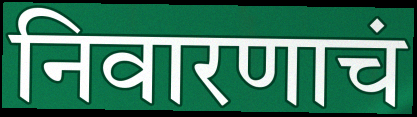
निवारणाचं